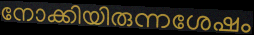
നോക്കിയിരുന്നശേഷം